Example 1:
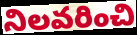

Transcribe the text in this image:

నిలవరించి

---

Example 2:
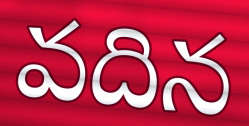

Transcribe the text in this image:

వదిన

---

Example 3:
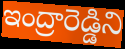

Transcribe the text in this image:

ఇంద్రారెడ్డిని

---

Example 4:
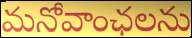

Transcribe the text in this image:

మనోవాంఛలను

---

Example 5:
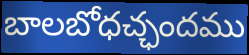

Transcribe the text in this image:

బాలబోధచ్ఛందము